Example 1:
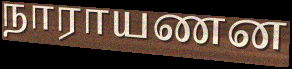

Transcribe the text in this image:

நாராயணன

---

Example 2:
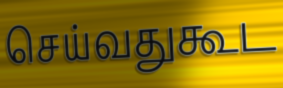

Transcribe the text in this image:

செய்வதுகூட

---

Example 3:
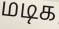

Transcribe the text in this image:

மடிக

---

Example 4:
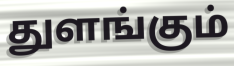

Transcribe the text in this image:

துளங்கும்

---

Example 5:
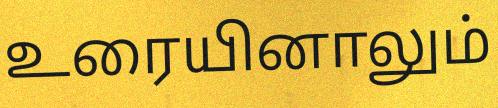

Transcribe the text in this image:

உரையினாலும்